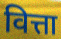
वित्ता